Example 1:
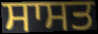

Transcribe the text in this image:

ਸਾਸਤ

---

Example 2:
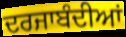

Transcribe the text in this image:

ਦਰਜਾਬੰਦੀਆਂ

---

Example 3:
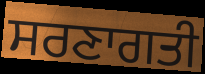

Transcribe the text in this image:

ਸਰਣਾਗਤੀ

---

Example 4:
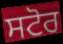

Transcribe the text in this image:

ਸਟੋਰ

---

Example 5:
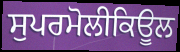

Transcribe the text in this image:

ਸੁਪਰਮੋਲੀਕਿਊਲ